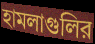
হামলাগুলির